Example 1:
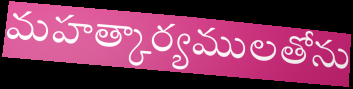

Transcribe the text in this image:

మహత్కార్యములతోను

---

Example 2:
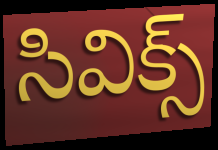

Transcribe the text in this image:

సివిక్స్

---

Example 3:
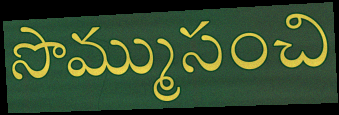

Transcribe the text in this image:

సొమ్ముసంచి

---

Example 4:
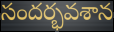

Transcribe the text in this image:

సందర్భవశాన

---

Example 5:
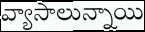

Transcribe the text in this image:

వ్యాసాలున్నాయి